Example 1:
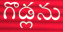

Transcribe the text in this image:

గొడ్లను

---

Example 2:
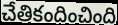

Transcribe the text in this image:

చేతికందించింది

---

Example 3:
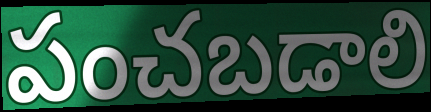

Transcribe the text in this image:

పంచబడాలి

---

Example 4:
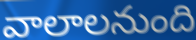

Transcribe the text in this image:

వాలాలనుంది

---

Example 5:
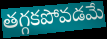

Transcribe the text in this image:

తగ్గకపోవడమే